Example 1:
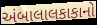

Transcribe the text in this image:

અંબાલાલકાકાનો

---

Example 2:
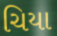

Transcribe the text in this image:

ચિયા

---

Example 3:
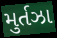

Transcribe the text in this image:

મુર્તઝા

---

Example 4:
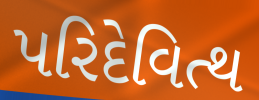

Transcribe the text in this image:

પરિદેવિત્થ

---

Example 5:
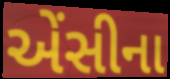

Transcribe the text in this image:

એંસીના